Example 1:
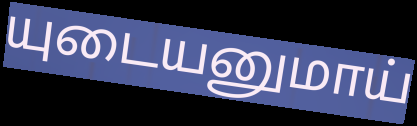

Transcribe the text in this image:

யுடையனுமாய்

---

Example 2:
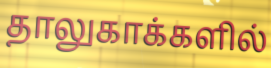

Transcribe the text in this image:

தாலுகாக்களில்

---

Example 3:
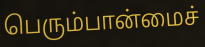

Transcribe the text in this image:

பெரும்பான்மைச்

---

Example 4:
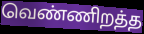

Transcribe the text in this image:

வெண்ணிறத்த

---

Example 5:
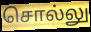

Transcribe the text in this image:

சொல்லு